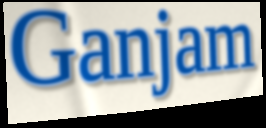
Ganjam